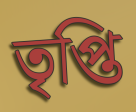
তৃপ্তি